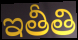
ఇతీతి